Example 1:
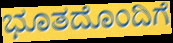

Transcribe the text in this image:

ಭೂತದೊಂದಿಗೆ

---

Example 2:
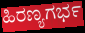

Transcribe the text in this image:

ಹಿರಣ್ಯಗರ್ಭ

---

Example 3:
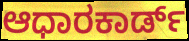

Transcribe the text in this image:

ಆಧಾರಕಾರ್ಡ್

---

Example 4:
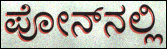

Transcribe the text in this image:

ಪೋನ್‍ನಲ್ಲಿ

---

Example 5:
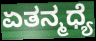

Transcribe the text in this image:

ಏತನ್ಮಧ್ಯೆ